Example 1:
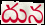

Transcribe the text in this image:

దున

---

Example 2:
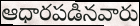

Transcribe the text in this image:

ఆధారపడినవారు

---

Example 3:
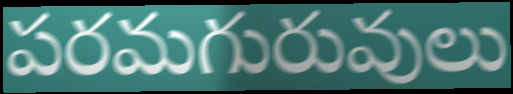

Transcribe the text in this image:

పరమగురువులు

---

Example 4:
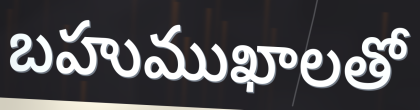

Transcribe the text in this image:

బహుముఖాలతో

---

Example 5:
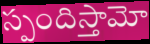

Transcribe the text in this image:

స్పందిస్తామో